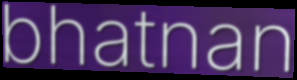
bhatnan